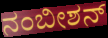
ನಂಬೀಶನ್